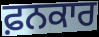
ਫ਼ਨਕਾਰ